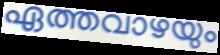
ഏത്തവാഴയും